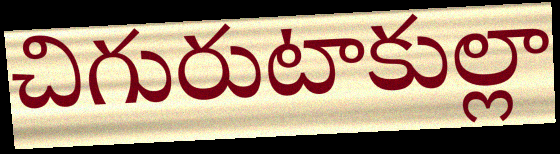
చిగురుటాకుల్లా